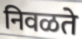
निवळते